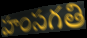
హంసగతి